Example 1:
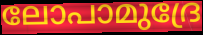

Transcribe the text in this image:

ലോപാമുദ്രേ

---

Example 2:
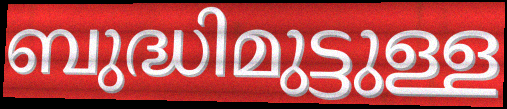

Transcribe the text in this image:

ബുദ്ധിമുട്ടുള്ള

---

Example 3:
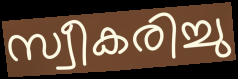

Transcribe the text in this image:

സ്വീകരിച്ചു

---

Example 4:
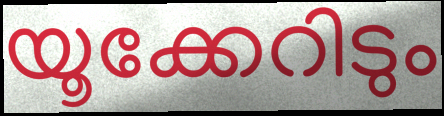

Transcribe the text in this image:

യൂക്കേറിടും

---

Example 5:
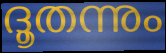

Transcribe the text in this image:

ദൂതന്നും